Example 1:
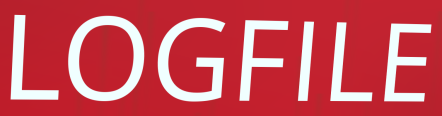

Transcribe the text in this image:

LOGFILE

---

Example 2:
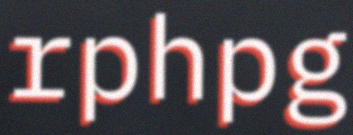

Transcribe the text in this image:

rphpg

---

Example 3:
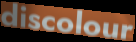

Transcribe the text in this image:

discolour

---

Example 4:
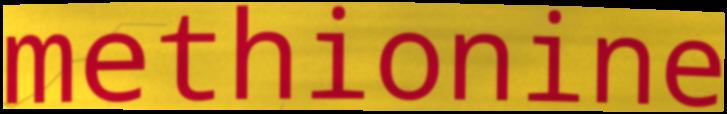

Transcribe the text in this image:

methionine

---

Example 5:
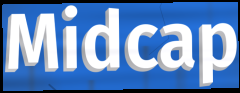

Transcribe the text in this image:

Midcap